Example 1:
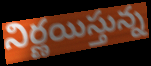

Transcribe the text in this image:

నిర్ణయిస్తున్న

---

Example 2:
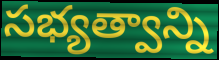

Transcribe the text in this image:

సభ్యత్వాన్ని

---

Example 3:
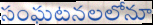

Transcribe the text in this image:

సంఘటనలలోనూ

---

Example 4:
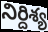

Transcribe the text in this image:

నిర్దిశ్య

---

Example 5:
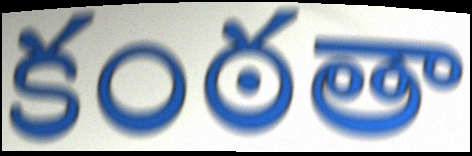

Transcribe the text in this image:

కంఠతా